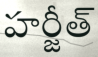
హర్జీత్